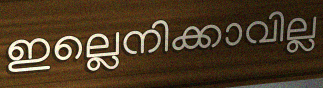
ഇല്ലെനിക്കാവില്ല